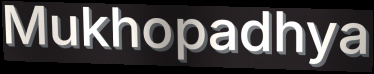
Mukhopadhya